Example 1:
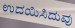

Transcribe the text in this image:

ಉದಯಿಸಿದುವು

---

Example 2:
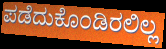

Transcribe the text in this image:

ಪಡೆದುಕೊಂಡಿರಲಿಲ್ಲ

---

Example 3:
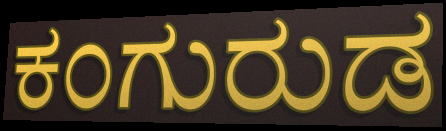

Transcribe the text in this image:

ಕಂಗುರುಡ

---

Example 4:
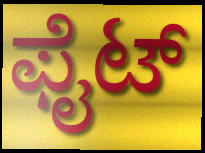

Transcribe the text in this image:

ಫೈಟ್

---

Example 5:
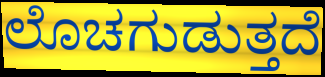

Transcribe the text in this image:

ಲೊಚಗುಡುತ್ತದೆ